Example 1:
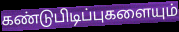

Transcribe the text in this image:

கண்டுபிடிப்புகளையும்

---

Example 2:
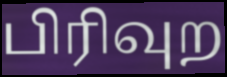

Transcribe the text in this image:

பிரிவுற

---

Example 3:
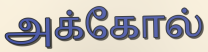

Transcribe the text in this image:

அக்கோல்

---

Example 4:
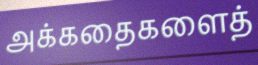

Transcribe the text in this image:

அக்கதைகளைத்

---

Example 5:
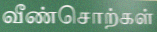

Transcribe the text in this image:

வீண்சொற்கள்